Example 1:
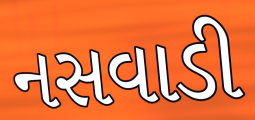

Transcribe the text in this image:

નસવાડી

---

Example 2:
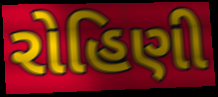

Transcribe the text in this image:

રોહિણી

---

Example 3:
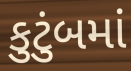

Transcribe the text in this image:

કુટુંબમાં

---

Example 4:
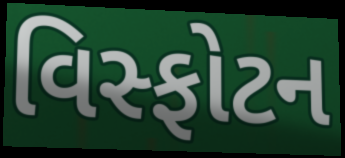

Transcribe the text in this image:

વિસ્ફોટન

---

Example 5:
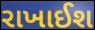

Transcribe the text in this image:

રાખાઈશ